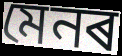
মেনৰ